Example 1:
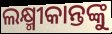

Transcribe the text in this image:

ଲକ୍ଷ୍ମୀକାନ୍ତଙ୍କୁ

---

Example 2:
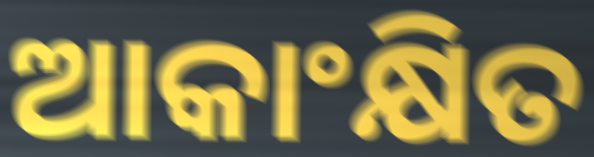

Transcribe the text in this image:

ଆକାଂକ୍ଷିତ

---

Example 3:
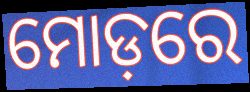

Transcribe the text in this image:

ମୋଡ଼ରେ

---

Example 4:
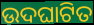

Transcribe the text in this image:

ଉଦଘାଟିତ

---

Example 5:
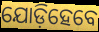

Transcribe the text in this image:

ଯୋଡ଼ିହେବେ